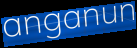
anganun